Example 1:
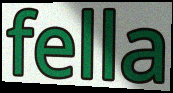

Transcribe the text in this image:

fella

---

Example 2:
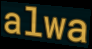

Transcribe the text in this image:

alwa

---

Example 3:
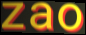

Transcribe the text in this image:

zao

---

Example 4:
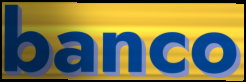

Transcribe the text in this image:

banco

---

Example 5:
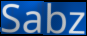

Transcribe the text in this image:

Sabz